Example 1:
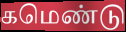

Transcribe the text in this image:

கமெண்டு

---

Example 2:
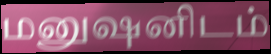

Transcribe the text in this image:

மனுஷனிடம்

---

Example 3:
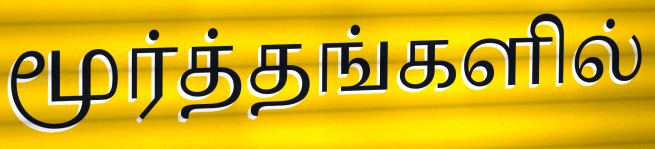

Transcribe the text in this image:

மூர்த்தங்களில்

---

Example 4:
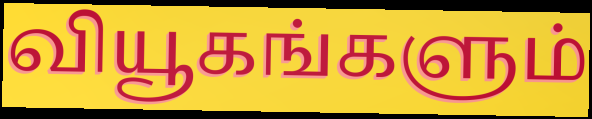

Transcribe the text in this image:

வியூகங்களும்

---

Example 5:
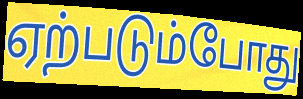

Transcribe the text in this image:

ஏற்படும்போது